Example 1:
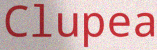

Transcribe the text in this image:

Clupea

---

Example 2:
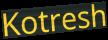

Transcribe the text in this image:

Kotresh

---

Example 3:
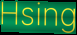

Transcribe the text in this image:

Hsing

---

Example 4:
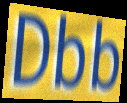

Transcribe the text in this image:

Dbb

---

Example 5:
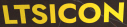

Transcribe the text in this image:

LTSICON